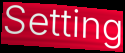
Setting